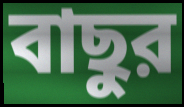
বাছুর